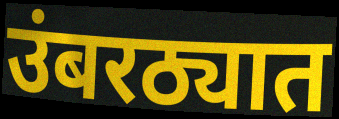
उंबरठ्यात